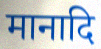
मानादि